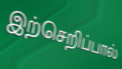
இற்செறிப்பால்